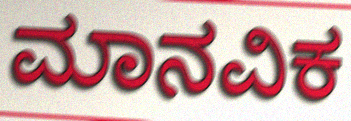
ಮಾನವಿಕ